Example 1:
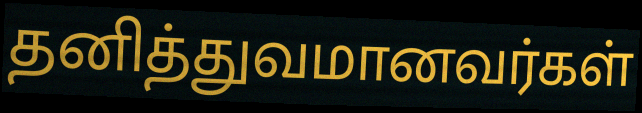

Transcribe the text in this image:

தனித்துவமானவர்கள்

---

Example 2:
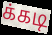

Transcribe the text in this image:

க்கடி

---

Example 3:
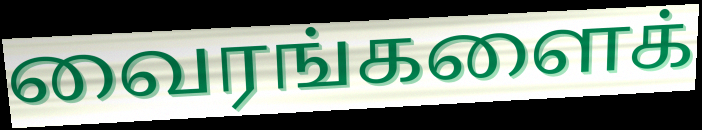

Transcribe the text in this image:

வைரங்களைக்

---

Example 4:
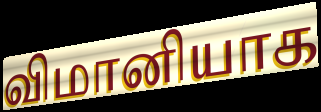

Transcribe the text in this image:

விமானியாக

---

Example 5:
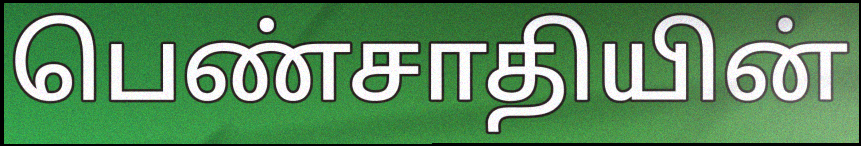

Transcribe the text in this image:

பெண்சாதியின்